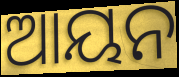
ଆୟନ